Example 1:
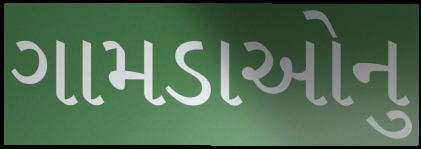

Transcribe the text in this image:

ગામડાઓનુ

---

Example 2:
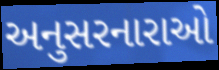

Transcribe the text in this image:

અનુસરનારાઓ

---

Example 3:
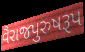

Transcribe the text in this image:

વૈરાજપુરુષરૂપ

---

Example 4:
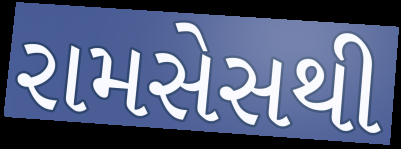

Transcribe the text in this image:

રામસેસથી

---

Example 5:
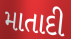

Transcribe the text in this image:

માતાદી